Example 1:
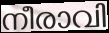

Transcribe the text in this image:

നീരാവി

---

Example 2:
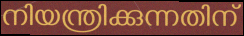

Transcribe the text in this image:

നിയന്ത്രിക്കുന്നതിന്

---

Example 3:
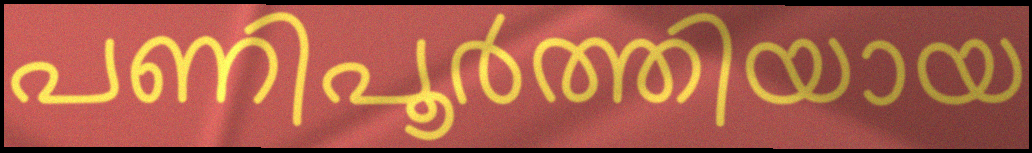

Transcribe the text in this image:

പണിപൂർത്തിയായ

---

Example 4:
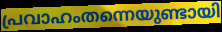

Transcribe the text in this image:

പ്രവാഹംതന്നെയുണ്ടായി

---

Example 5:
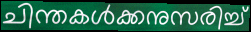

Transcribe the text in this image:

ചിന്തകൾക്കനുസരിച്ച്